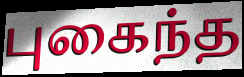
புகைந்த